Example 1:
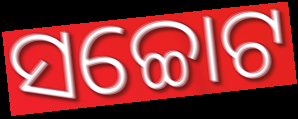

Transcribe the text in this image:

ସଚ୍ଚୋଟ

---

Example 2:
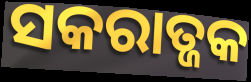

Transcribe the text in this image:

ସକରାତ୍ଜକ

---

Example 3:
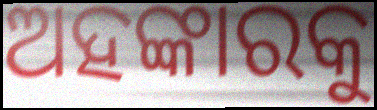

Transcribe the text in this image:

ଅହଙ୍କାରକୁ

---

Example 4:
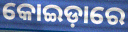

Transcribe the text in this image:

କୋଇଡ଼ାରେ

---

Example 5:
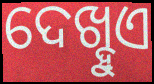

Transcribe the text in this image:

ଦେଖ୍ହୁଏ